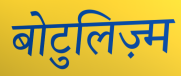
बोटुलिज़्म